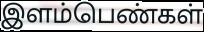
இளம்பெண்கள்